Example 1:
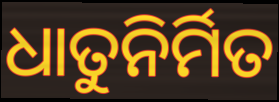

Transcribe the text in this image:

ଧାତୁନିର୍ମିତ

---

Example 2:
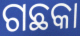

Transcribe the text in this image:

ଗଛକା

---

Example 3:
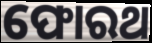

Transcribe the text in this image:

ଫୋରଥ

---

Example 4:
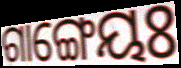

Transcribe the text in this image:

ଗାଙ୍ଗେୟଃ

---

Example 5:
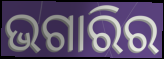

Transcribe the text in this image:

ଭଗାରିର